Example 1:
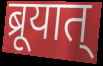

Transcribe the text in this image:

ब्रूयात्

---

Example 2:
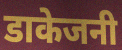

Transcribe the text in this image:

डाकेजनी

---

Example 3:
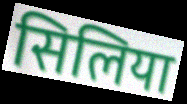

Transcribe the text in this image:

सिलिया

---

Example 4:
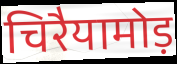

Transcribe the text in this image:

चिरैयामोड़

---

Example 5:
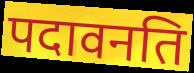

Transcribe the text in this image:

पदावनति